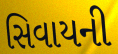
સિવાયની